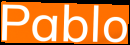
Pablo